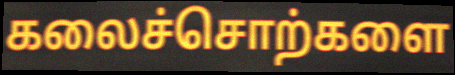
கலைச்சொற்களை